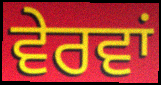
ਵੇਰਵਾਂ